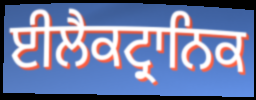
ਈਲੈਕਟ੍ਰਾਨਿਕ